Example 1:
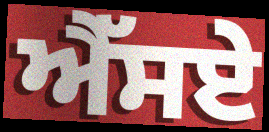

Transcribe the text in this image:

ਐੱਸਏ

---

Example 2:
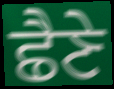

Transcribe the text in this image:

ਛੈਣੇ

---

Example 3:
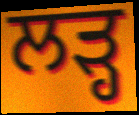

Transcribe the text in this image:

ਲੜ੍ਹ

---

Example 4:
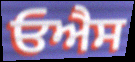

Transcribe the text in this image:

ਓਐਸ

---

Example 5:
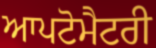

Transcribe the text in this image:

ਆਪਟੋਮੈਟਰੀ